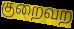
குறைவற